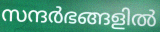
സന്ദർഭങ്ങളിൽ